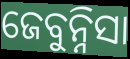
ଜେବୁନ୍ନିସା